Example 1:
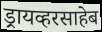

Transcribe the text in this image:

ड्रायव्हरसाहेब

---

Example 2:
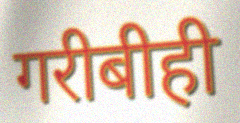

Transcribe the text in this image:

गरीबीही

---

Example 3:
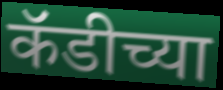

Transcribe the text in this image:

कॅडीच्या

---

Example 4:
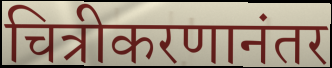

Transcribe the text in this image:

चित्रीकरणानंतर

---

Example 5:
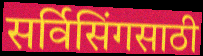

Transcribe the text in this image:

सर्विसिंगसाठी